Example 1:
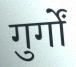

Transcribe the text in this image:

गुर्गों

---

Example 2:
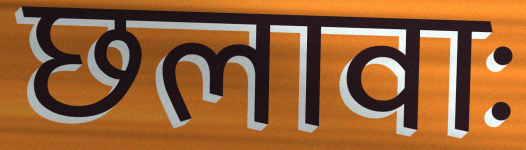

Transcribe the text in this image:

छलावाः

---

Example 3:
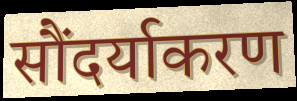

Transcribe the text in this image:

सौंदर्याकरण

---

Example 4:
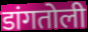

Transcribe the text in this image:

डांगतोली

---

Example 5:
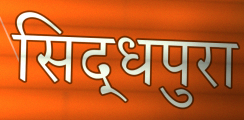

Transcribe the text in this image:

सिद्धपुरा